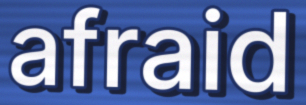
afraid